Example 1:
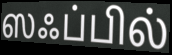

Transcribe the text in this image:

ஸஃப்பில்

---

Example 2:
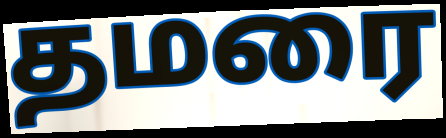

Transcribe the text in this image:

தமரை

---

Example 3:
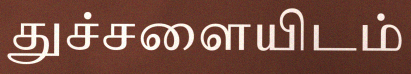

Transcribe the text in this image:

துச்சளையிடம்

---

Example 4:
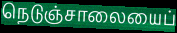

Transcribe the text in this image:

நெடுஞ்சாலையைப்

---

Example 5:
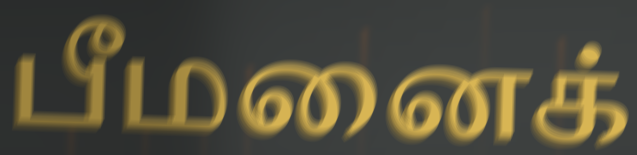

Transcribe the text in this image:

பீமனைக்